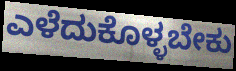
ಎಳೆದುಕೊಳ್ಳಬೇಕು